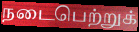
நடைபெற்றுக்